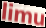
limu